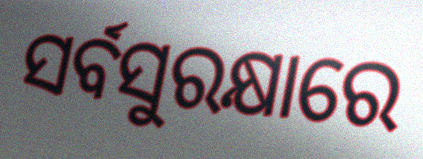
ସର୍ବସୁରକ୍ଷାରେ